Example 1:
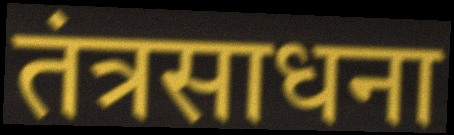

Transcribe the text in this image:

तंत्रसाधना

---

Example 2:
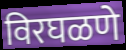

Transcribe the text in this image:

विरघळणे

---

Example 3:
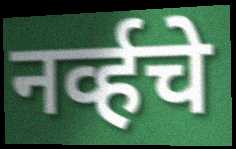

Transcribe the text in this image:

नर्व्हचे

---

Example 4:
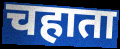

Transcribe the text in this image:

चहाता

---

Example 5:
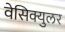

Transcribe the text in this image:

वेसिक्युलर